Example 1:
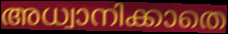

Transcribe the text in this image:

അധ്വാനിക്കാതെ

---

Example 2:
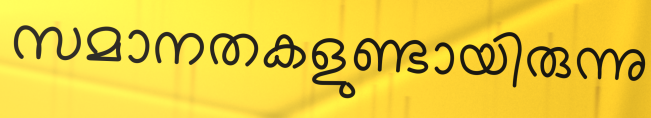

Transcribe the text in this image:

സമാനതകളുണ്ടായിരുന്നു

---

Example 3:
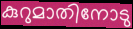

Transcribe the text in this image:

കുറുമാതിനോടു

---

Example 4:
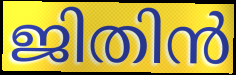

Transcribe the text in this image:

ജിതിൻ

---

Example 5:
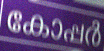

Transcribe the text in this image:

കോപ്പർ